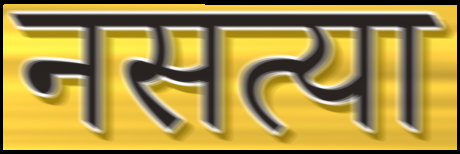
नसत्या